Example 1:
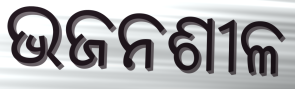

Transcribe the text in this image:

ଭଜନଶୀଳ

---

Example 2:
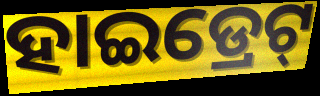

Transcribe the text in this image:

ହାଇଡ୍ରେଟ୍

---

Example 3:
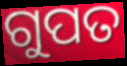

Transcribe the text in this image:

ଗୁପତ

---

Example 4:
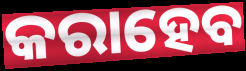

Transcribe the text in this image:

କରାହେବ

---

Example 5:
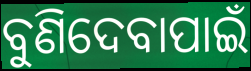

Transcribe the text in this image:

ବୁଣିଦେବାପାଇଁ